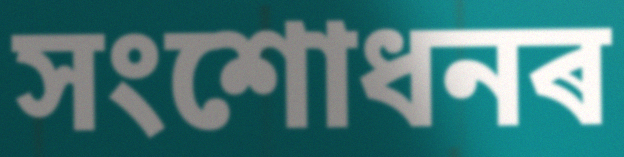
সংশোধনৰ